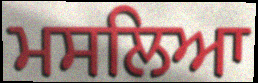
ਮਸਲਿਆ